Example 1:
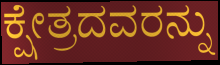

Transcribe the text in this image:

ಕ್ಷೇತ್ರದವರನ್ನು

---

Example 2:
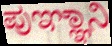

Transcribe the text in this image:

ಪುಞ್ಞಾನಿ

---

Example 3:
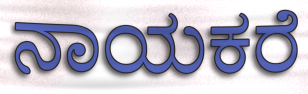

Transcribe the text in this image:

ನಾಯಕರೆ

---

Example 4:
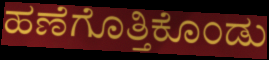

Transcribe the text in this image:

ಹಣೆಗೊತ್ತಿಕೊಂಡು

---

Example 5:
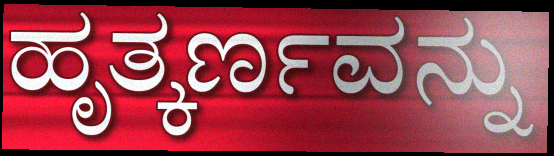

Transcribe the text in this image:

ಹೃತ್ಕರ್ಣವನ್ನು